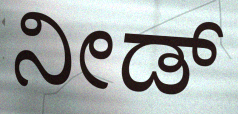
ನೀಡ್